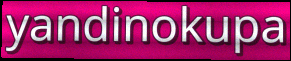
yandinokupa